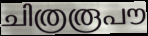
ചിത്രരൂപൗ